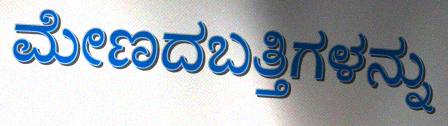
ಮೇಣದಬತ್ತಿಗಳನ್ನು